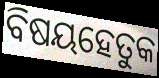
ବିଷୟହେତୁକ